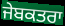
ਜੇਬਕਤਰਾ